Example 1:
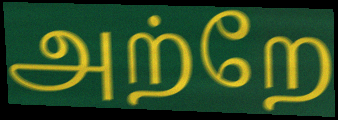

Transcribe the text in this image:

அற்றே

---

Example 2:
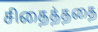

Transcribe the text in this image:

சிதைத்ததை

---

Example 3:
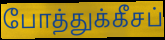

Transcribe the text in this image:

போத்துக்கீசப்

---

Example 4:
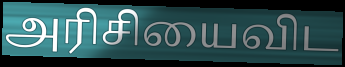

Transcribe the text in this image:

அரிசியைவிட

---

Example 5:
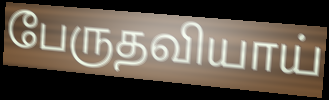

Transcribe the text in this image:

பேருதவியாய்